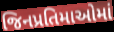
જિનપ્રતિમાઓમાં